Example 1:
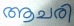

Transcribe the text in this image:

ആചരി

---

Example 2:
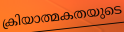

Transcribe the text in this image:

ക്രിയാത്മകതയുടെ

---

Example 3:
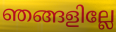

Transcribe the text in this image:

ഞങ്ങളില്ലേ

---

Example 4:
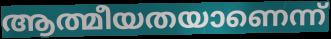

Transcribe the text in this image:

ആത്മീയതയാണെന്ന്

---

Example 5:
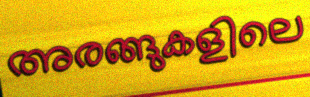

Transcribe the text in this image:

അരങ്ങുകളിലെ